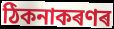
ঠিকনাকৰণৰ